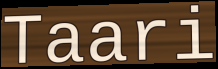
Taari